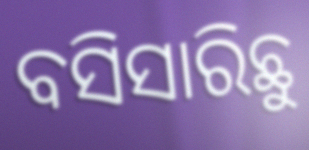
ବସିସାରିଛୁ